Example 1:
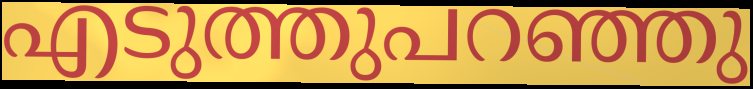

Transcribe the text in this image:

എടുത്തുപറഞ്ഞു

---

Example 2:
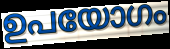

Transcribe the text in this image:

ഉപയോഗം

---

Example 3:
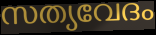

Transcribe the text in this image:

സത്യവേദം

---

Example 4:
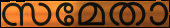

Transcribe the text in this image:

സമേതാ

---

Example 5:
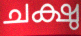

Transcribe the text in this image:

ചക്ഷു